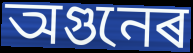
অগুনেৰ